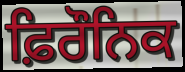
ਫ਼ਿਰੌਨਿਕ